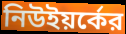
নিউইয়র্কের